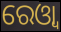
ରେଓ୍ବା